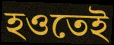
হওতেই